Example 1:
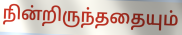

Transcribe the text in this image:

நின்றிருந்ததையும்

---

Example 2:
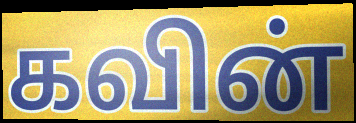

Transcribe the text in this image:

கவின்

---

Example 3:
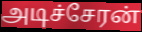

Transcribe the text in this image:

அடிச்சேரன்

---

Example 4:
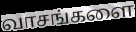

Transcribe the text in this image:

வாசங்களை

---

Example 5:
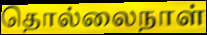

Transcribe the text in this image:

தொல்லைநாள்